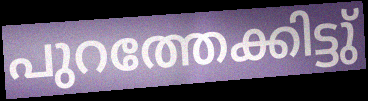
പുറത്തേക്കിട്ടു്